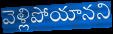
వెళ్లిపోయానని